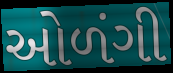
ઓળંગી